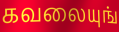
கவலையுங்